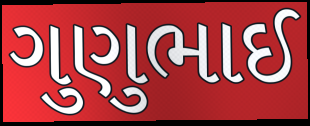
ગુણુભાઈ